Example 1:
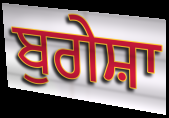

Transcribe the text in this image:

ਬੁਗੇਸ਼ਾ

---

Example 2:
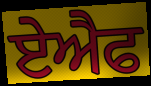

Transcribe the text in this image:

ਏਐਫ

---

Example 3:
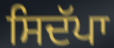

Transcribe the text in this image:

ਸਿਦੱਪਾ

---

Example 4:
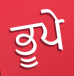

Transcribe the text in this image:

ਭੂਪੇ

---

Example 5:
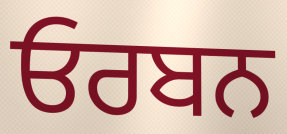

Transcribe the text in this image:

ਓਰਬਨ